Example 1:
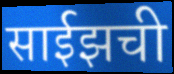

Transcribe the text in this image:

साईझची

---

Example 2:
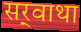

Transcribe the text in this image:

सर्वाथा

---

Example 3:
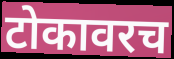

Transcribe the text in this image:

टोकावरच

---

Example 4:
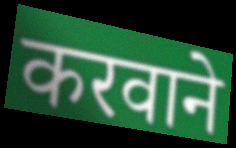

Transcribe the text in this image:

करवाने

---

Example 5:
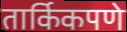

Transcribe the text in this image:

तार्किकपणे